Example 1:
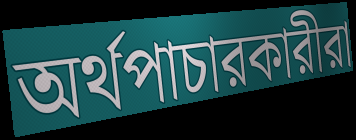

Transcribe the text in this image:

অর্থপাচারকারীরা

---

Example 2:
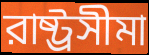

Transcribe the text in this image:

রাষ্ট্রসীমা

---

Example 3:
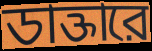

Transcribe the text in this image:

ডাক্তারে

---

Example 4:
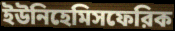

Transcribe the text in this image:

ইউনিহেমিসফেরিক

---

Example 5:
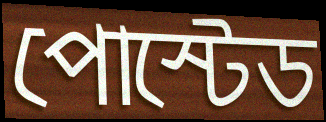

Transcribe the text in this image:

পোস্টেড